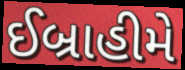
ઈબ્રાહીમે